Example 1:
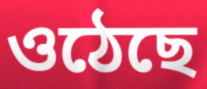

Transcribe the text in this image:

ওঠেছে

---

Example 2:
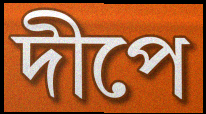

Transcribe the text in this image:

দীপে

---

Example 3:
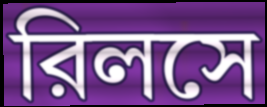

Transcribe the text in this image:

রিলসে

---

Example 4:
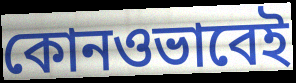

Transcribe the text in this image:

কোনওভাবেই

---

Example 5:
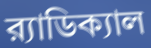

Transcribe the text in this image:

র‍্যাডিক্যাল